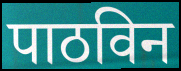
पाठविन